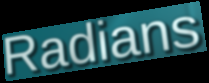
Radians